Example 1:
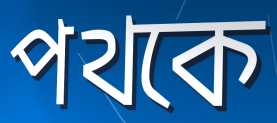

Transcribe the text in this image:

পথকে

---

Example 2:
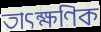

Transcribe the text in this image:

তাৎক্ষণিক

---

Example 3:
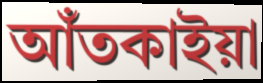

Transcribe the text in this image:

আঁতকাইয়া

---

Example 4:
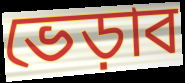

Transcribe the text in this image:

ভেড়াব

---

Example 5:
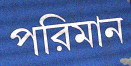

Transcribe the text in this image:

পরিমান